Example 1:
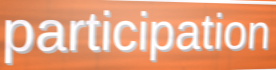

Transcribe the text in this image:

participation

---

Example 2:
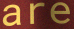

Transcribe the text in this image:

are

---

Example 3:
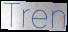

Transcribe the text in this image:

Tren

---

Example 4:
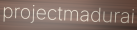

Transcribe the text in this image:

projectmadurai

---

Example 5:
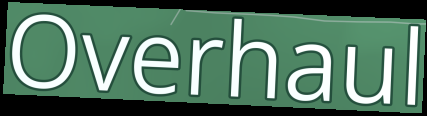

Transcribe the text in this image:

Overhaul